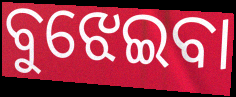
ବୁଝେଇବା